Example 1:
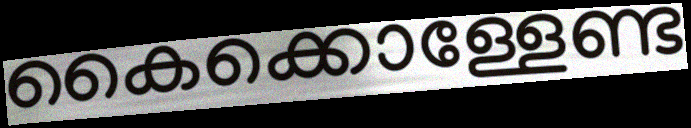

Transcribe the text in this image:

കൈക്കൊള്ളേണ്ട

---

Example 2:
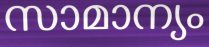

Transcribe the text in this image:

സാമാന്യം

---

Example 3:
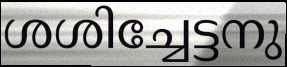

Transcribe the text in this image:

ശശിച്ചേട്ടനു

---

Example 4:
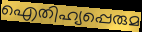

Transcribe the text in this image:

ഐതിഹ്യപ്പെരുമ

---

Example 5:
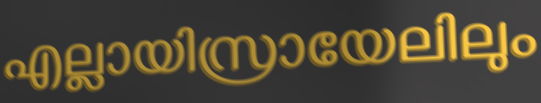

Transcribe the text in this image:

എല്ലായിസ്രായേലിലും